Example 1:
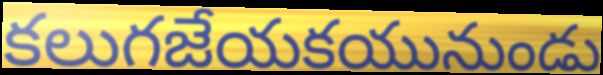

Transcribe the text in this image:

కలుగజేయకయునుండు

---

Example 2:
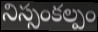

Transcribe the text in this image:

నిస్సంకల్పం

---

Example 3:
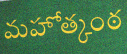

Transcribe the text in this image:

మహోత్కంఠ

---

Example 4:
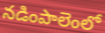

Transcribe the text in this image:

నడింపాలెంలో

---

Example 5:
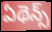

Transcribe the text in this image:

ఏథెన్స్